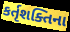
કર્તૃશક્તિના